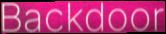
Backdoor